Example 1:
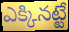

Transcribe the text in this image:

ఎక్కినట్టే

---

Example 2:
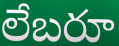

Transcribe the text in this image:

లేబరూ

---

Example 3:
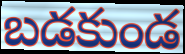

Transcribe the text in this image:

బడకుండ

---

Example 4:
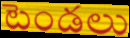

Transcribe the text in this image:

టెండలు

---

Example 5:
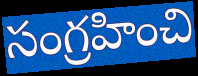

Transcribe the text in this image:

సంగ్రహించి